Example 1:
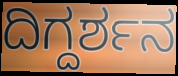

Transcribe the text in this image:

ದಿಗ್ದರ್ಶನ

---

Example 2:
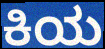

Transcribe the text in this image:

ಕಿಯ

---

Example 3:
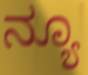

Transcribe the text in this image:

ನ್ಯೂ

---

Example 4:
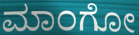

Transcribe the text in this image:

ಮಾಂಗೋ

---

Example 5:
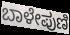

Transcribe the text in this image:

ಬಾಳೇಪುಣಿ